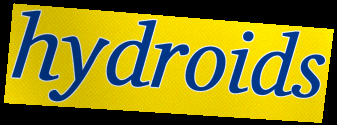
hydroids